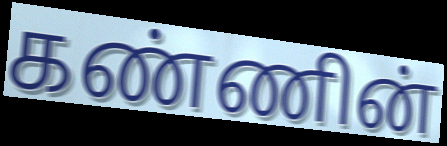
கண்ணின்